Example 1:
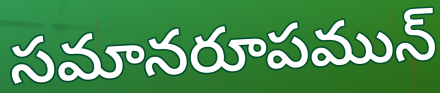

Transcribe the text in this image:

సమానరూపమున్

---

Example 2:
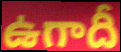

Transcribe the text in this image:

ఉగాదీ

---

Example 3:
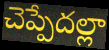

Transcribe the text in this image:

చెప్పేదల్లా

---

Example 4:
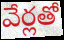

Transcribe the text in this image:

వేర్లతో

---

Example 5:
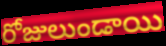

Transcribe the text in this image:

రోజులుండాయి